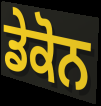
ਡੇਕੋਨ